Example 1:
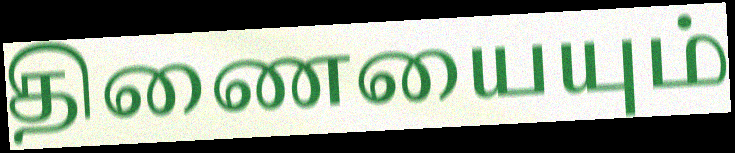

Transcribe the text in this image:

திணையையும்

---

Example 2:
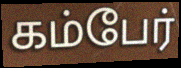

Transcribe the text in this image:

கம்பேர்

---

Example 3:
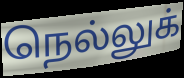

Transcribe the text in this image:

நெல்லுக்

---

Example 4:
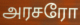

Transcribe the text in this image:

அரசரோ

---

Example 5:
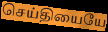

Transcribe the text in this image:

செய்தியையே